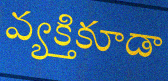
వ్యక్తికూడా